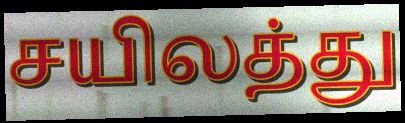
சயிலத்து